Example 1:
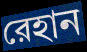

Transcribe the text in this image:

রেহান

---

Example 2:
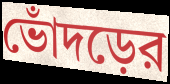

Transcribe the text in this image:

ভোঁদড়ের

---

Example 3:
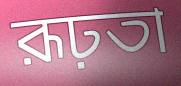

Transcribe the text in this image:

রূঢ়তা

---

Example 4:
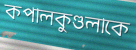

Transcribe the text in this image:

কপালকুণ্ডলাকে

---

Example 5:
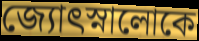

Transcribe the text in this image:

জ্যোৎস্নালোকে